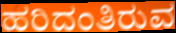
ಹರಿದಂತಿರುವ